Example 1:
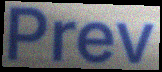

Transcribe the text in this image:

Prev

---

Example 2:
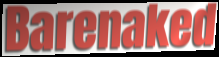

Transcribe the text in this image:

Barenaked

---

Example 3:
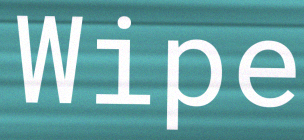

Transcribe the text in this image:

Wipe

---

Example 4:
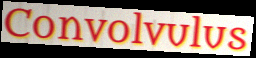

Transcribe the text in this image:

Convolvulus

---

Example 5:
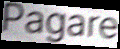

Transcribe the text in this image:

Pagare